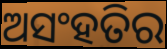
ଅସଂହତିର